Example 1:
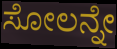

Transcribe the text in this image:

ಸೋಲನ್ನೇ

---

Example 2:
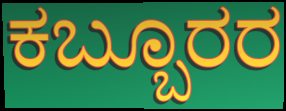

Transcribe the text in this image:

ಕಬ್ಬೂರರ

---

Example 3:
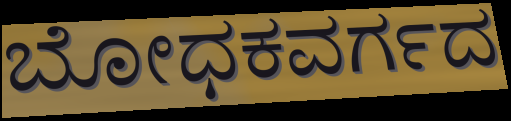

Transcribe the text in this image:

ಬೋಧಕವರ್ಗದ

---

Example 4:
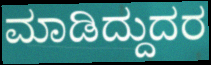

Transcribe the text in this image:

ಮಾಡಿದ್ದುದರ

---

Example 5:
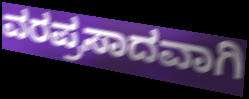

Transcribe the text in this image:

ವರಪ್ರಸಾದವಾಗಿ